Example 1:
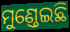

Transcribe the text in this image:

ମୁଣ୍ଡେଇଛି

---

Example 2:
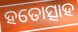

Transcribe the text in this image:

ହତୋତ୍ସାହ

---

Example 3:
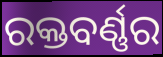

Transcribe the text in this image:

ରକ୍ତବର୍ଣ୍ଣର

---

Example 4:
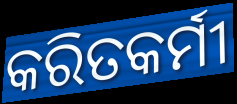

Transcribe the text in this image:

କରିତକର୍ମୀ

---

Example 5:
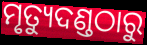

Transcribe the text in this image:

ମୃତ୍ୟୁଦଣ୍ଡଠାରୁ